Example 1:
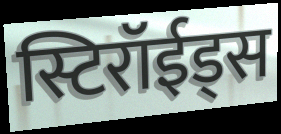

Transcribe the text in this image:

स्टिरॉईड्स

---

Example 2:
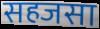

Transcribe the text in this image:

सहजसा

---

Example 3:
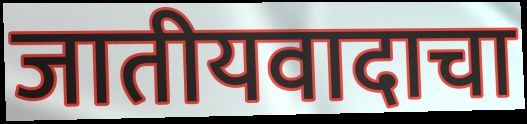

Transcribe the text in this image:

जातीयवादाचा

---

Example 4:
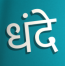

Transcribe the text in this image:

धंदे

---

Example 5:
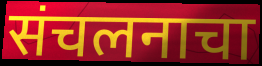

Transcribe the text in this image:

संचलनाचा